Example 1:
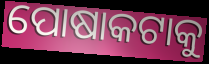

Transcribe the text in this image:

ପୋଷାକଟାକୁ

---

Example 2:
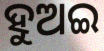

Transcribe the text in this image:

ହୁଅଇ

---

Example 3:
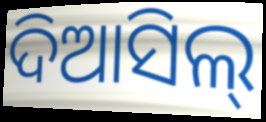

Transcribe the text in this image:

ଦିଆସିଲ୍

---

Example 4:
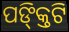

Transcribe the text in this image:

ପଙ୍କ୍ତିଟି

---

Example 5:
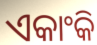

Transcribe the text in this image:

ଏକାଂକି